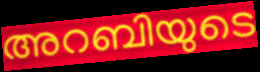
അറബിയുടെ